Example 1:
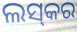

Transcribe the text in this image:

ଲସ୍‌କର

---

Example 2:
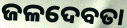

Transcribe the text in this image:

ଜଳଦେବତା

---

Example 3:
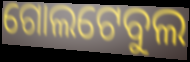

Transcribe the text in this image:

ଗୋଲଟେବୁଲ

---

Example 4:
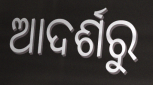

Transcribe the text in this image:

ଆଦର୍ଶରୁ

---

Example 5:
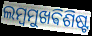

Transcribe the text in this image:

ଲମ୍ବମୁଖଵିଶିଷ୍ଟ